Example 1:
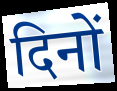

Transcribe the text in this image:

दिनों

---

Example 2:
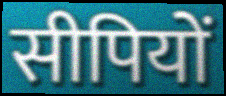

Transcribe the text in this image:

सीपियों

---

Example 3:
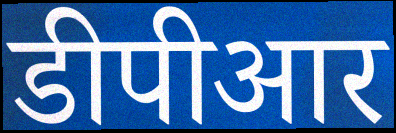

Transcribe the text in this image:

डीपीआर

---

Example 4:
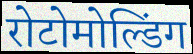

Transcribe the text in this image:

रोटोमोल्डिंग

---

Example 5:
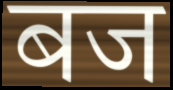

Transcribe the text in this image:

बज